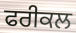
ਫਰੀਕਲ